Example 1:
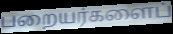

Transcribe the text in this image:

பறையர்களைப்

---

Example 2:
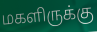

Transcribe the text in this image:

மகளிருக்கு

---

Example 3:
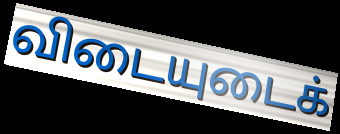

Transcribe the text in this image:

விடையுடைக்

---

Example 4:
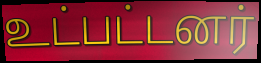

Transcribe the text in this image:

உட்பட்டனர்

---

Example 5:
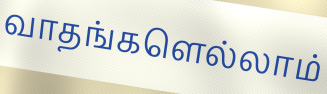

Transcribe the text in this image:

வாதங்களெல்லாம்